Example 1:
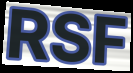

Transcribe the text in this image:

RSF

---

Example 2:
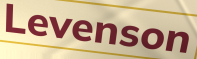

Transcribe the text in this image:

Levenson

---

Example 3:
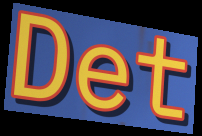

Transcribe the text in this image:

Det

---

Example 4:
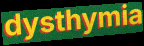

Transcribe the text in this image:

dysthymia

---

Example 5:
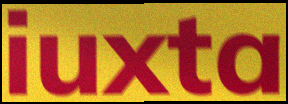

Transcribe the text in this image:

iuxta